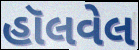
હૉલવેલ